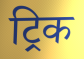
ट्रिक